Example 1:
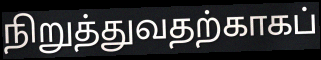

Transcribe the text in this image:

நிறுத்துவதற்காகப்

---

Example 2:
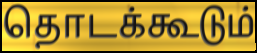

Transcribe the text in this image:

தொடக்கூடும்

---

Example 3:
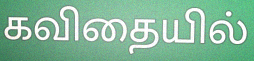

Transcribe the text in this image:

கவிதையில்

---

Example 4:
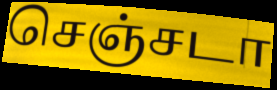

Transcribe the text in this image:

செஞ்சடா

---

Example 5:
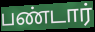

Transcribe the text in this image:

பண்டார்